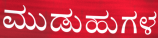
ಮುಡುಹುಗಳ